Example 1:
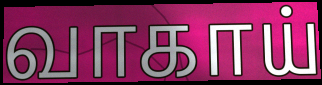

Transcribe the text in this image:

வாகாய்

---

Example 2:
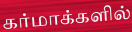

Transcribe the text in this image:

கர்மாக்களில்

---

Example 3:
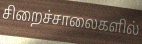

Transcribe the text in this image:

சிறைச்சாலைகளில்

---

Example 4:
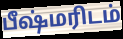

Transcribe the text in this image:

பீஷ்மரிடம்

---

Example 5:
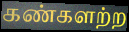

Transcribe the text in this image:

கண்களற்ற